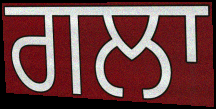
ਗਲਾ